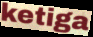
ketiga